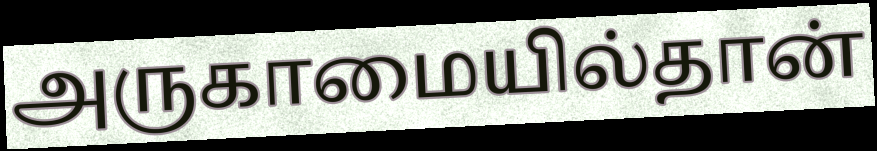
அருகாமையில்தான்